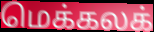
மெக்கலக்